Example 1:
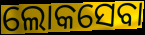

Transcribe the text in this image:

ଲୋକସେବା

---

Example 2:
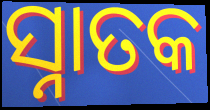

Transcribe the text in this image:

ସ୍ନାତକ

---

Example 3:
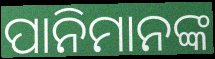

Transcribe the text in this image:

ପାନିମାନଙ୍କ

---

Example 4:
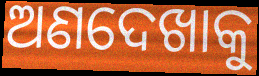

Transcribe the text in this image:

ଅଣଦେଖାକୁ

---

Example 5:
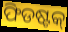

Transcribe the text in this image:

ଫିଡଷ୍ଟକ୍